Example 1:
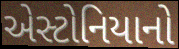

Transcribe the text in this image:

એસ્ટોનિયાનો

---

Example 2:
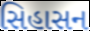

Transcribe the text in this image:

સિહાસન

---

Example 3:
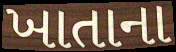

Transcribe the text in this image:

ખાતાના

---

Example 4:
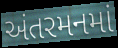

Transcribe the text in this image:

અંતરમનમાં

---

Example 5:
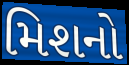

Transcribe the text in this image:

મિશનો